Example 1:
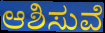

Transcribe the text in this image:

ಆಶಿಸುವೆ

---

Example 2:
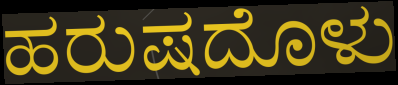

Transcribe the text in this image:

ಹರುಷದೊಳು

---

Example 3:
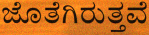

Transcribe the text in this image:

ಜೊತೆಗಿರುತ್ತವೆ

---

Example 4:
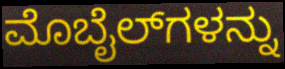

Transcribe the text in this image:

ಮೊಬೈಲ್‌ಗಳನ್ನು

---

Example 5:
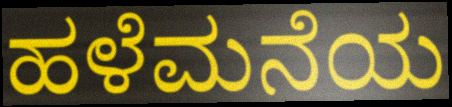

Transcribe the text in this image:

ಹಳೆಮನೆಯ